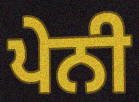
ਪੇਨੀ